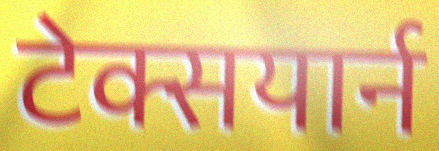
टेक्सयार्न